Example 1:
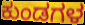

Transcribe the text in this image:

ಕುಂಡಗಳ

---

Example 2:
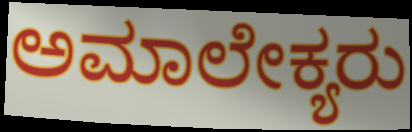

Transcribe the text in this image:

ಅಮಾಲೇಕ್ಯರು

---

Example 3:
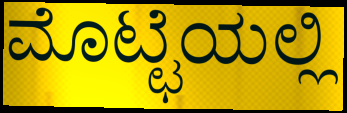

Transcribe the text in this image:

ಮೊಟ್ಟೆಯಲ್ಲಿ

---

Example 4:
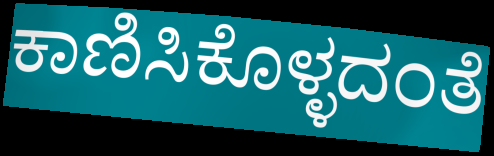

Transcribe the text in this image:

ಕಾಣಿಸಿಕೊಳ್ಳದಂತೆ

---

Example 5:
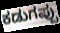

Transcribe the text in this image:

ಕಡುಗಪ್ಪು